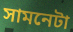
সামনেটা